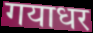
गयाधर